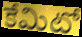
కేమిటో